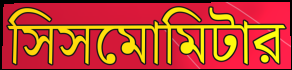
সিসমোমিটার